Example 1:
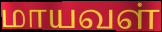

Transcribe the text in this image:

மாயவள்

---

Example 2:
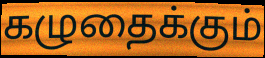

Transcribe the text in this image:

கழுதைக்கும்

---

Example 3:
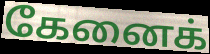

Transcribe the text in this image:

கேனைக்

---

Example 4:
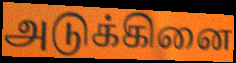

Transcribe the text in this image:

அடுக்கினை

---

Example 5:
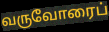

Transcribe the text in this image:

வருவோரைப்